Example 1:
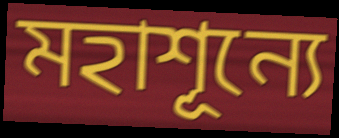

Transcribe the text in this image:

মহাশূন্যে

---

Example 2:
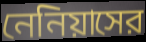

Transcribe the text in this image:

নেনিয়াসের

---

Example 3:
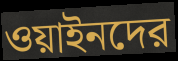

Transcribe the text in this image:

ওয়াইনদের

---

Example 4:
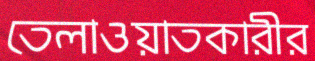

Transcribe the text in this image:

তেলাওয়াতকারীর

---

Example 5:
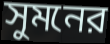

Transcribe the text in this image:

সুমনের